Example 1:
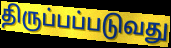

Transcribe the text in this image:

திருப்பப்படுவது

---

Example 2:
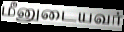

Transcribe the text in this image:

மீனுடையவர்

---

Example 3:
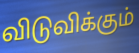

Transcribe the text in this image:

விடுவிக்கும்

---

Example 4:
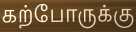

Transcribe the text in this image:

கற்போருக்கு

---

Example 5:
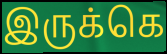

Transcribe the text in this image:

இருக்கெ